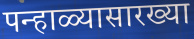
पन्हाळ्यासारख्या